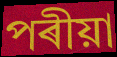
পৰীয়া